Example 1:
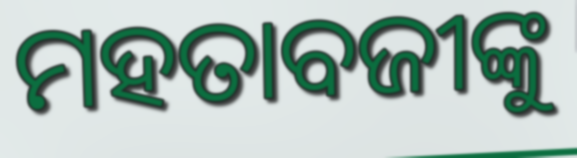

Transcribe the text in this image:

ମହତାବଜୀଙ୍କୁ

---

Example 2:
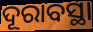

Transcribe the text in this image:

ଦୂରାବସ୍ଥା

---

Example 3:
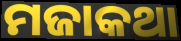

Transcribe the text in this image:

ମଜାକଥା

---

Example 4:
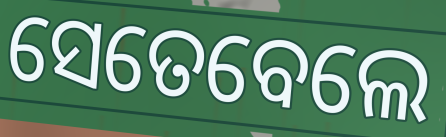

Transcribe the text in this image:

ସେତେବେଲେ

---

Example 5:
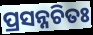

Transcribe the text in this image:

ପ୍ରସନ୍ନଚିତଃ